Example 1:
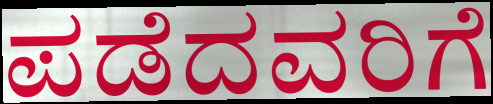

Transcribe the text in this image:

ಪಡೆದವರಿಗೆ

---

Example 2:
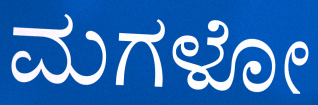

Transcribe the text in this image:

ಮಗಳೋ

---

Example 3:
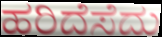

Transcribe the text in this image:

ಹರಿದೆಸೆದು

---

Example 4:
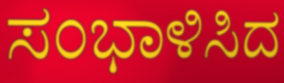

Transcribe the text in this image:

ಸಂಭಾಳಿಸಿದ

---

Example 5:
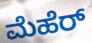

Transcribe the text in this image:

ಮೆಹೆರ್